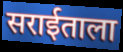
सराईताला